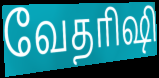
வேதரிஷி